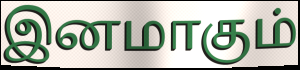
இனமாகும்